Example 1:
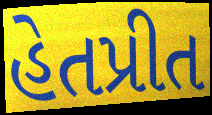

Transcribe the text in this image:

હેતપ્રીત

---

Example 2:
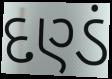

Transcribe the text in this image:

દણ્ડં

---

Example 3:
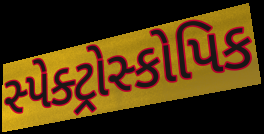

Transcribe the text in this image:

સ્પેક્ટ્રોસ્કોપિક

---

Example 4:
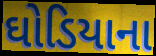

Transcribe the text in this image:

ઘોડિયાના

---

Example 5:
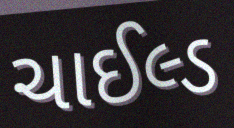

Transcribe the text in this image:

ચાઈલ્ડ